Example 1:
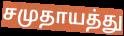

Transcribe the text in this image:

சமுதாயத்து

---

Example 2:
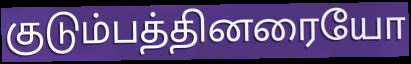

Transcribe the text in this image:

குடும்பத்தினரையோ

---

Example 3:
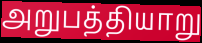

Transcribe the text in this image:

அறுபத்தியாறு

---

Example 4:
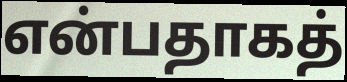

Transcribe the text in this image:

என்பதாகத்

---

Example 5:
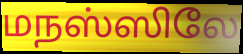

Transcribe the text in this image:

மநஸ்ஸிலே